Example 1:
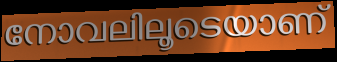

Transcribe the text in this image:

നോവലിലൂടെയാണ്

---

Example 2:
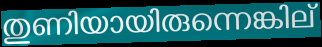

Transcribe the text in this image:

തുണിയായിരുന്നെങ്കില്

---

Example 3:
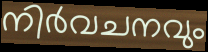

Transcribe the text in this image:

നിർവചനവും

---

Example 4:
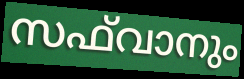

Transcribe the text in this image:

സഫ്‌വാനും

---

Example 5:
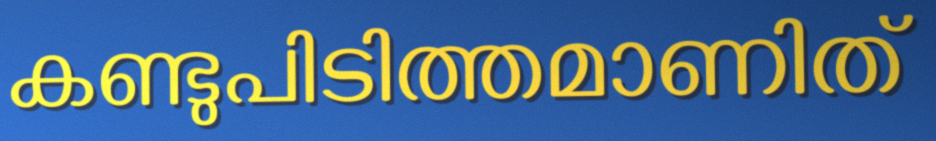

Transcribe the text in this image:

കണ്ടുപിടിത്തമാണിത്